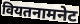
वियतनामनेट